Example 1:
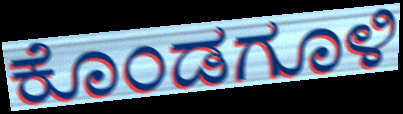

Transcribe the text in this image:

ಕೊಂಡಗೂಳಿ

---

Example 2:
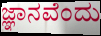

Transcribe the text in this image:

ಜ್ಞಾನವೆಂದು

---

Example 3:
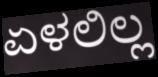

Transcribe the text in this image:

ಏಳಲಿಲ್ಲ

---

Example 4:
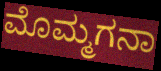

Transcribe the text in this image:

ಮೊಮ್ಮಗನಾ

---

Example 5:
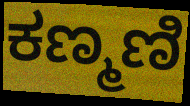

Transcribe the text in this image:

ಕಣ್ಮಣಿ